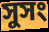
সুসং